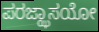
ಪರಜ್ಝಾಸಯೋ